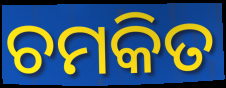
ଚମକିତ